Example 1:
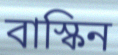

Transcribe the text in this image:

বাস্কিন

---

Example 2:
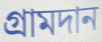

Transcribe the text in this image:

গ্রামদান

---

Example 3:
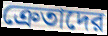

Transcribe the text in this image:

ক্রেতাদের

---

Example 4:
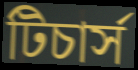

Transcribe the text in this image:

টিচার্স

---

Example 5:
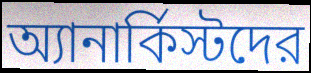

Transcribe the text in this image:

অ্যানার্কিস্টদের